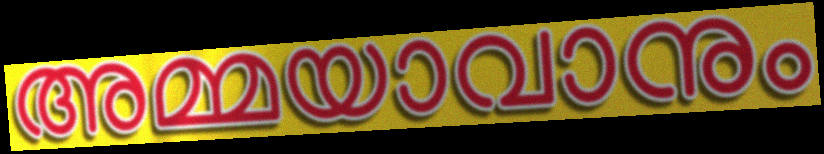
അമ്മയാവാനും